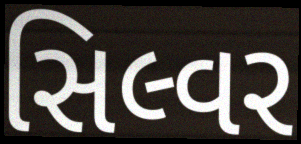
સિલ્વર